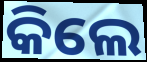
କିଲେ